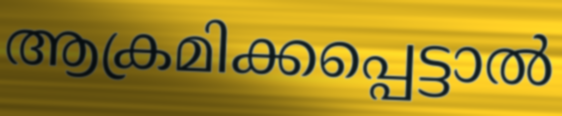
ആക്രമിക്കപ്പെട്ടാൽ